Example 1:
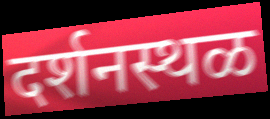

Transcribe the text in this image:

दर्शनस्थळ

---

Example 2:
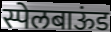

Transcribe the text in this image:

स्पेलबाऊंड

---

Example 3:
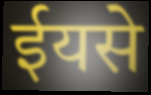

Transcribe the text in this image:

ईयसे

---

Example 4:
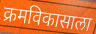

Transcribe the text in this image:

क्रमविकासाला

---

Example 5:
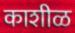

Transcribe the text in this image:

काशीळ